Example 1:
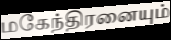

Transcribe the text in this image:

மகேந்திரனையும்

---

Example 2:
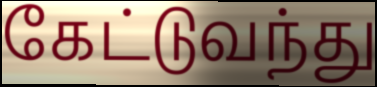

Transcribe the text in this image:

கேட்டுவந்து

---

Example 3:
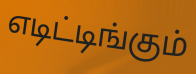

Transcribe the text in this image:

எடிட்டிங்கும்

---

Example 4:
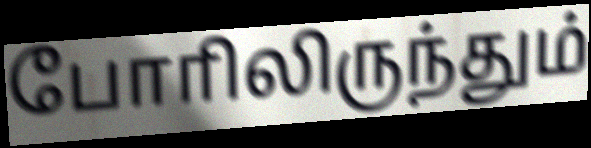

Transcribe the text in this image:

போரிலிருந்தும்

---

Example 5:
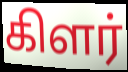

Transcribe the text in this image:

கிளர்